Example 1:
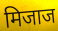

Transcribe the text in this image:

मिजाज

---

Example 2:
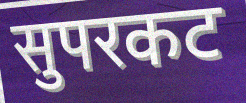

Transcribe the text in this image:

सुपरकट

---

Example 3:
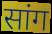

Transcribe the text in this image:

सांग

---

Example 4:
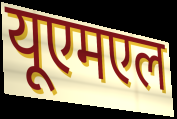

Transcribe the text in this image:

यूएमएल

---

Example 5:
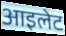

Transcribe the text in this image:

आइलेट